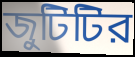
জুটিটির